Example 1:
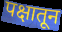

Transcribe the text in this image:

पक्षातून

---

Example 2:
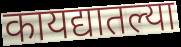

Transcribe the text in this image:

कायद्यातल्या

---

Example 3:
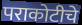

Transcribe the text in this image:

पराकोटीचे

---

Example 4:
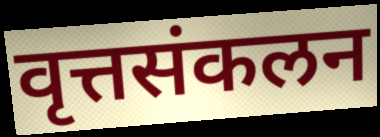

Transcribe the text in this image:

वृत्तसंकलन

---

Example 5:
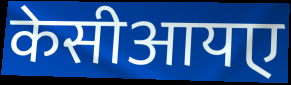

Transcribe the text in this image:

केसीआयए